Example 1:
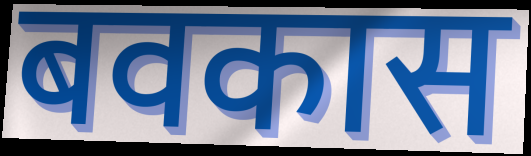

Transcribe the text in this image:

बवकास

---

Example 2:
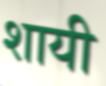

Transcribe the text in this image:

शायी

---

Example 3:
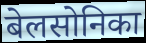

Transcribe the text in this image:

बेलसोनिका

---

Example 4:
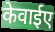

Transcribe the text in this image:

केवाईए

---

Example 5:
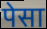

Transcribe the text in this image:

पेसा